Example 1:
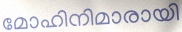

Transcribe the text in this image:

മോഹിനിമാരായി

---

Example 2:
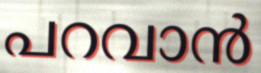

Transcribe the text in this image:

പറവാൻ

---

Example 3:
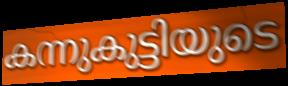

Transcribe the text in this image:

കന്നുകുട്ടിയുടെ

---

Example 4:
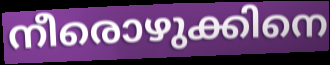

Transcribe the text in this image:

നീരൊഴുക്കിനെ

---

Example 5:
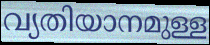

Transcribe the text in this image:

വ്യതിയാനമുള്ള